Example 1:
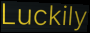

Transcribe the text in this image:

Luckily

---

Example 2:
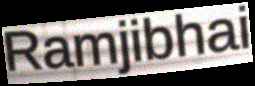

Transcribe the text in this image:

Ramjibhai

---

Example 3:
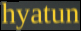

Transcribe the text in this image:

hyatun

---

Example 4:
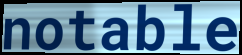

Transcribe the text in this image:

notable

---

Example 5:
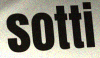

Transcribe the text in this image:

sotti